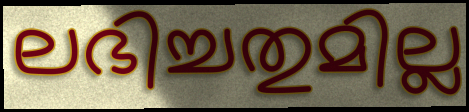
ലഭിച്ചതുമില്ല